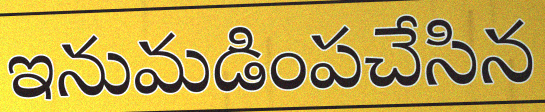
ఇనుమడింపచేసిన